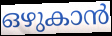
ഒഴുകാൻ